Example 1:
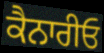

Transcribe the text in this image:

ਕੈਨਾਰੀਓ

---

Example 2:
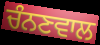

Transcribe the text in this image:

ਚੰਨਣਵਾਲ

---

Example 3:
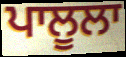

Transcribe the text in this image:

ਪਾਲੂਲਾ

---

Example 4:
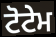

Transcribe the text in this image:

ਟੋਟੇਮ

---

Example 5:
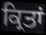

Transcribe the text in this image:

ਕ੍ਰਿਤਾਂ